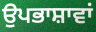
ਉਪਭਾਸ਼ਾਵਾਂ